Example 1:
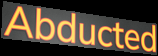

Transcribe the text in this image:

Abducted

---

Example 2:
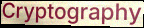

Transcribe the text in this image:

Cryptography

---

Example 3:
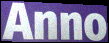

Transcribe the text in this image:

Anno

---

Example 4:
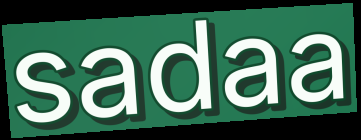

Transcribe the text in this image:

sadaa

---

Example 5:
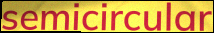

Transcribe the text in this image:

semicircular